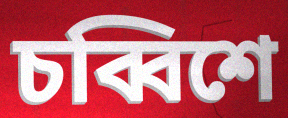
চব্বিশে